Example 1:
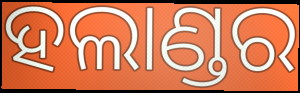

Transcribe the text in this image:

ହଲାଣ୍ଡର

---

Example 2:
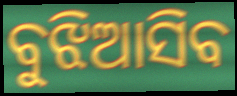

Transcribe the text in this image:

ବୁଝିଆସିବ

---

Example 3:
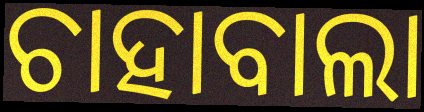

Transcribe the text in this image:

ଚାହାବାଲା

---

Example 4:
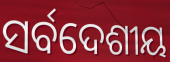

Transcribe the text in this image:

ସର୍ବଦେଶୀୟ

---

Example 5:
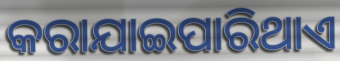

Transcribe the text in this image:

କରାଯାଇପାରିଥାଏ